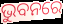
ଭୁବନରେ